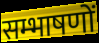
सम्भाषणों